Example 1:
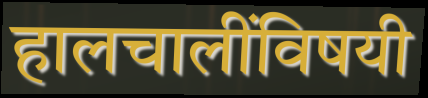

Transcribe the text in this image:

हालचालींविषयी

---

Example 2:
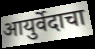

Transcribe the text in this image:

आयुर्वेदाचा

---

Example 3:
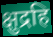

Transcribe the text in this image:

क्षुद्रहि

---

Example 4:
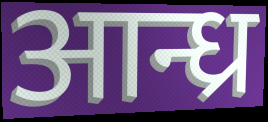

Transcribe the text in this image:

आन्ध्र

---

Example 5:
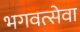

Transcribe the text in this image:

भगवत्सेवा